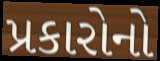
પ્રકારોનો